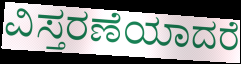
ವಿಸ್ತರಣೆಯಾದರೆ